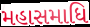
મહાસમાધિ